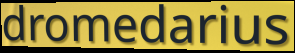
dromedarius